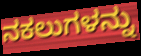
ನಕಲುಗಳನ್ನು